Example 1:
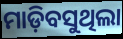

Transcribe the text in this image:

ମାଡ଼ିବସୁଥିଲା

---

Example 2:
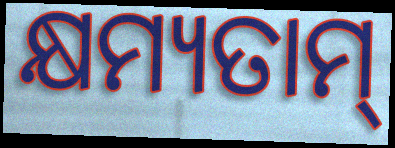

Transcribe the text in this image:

କ୍ଷମ୍ୟତାମ୍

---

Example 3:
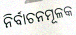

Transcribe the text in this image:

ନିର୍ବାଚନମୂଳକ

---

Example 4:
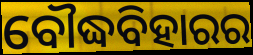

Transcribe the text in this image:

ବୌଦ୍ଧବିହାରର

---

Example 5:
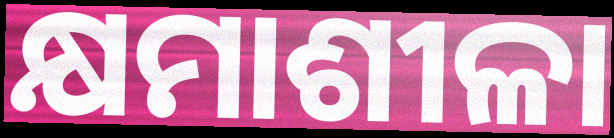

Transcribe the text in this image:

କ୍ଷମାଶୀଳା